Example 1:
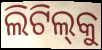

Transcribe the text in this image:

ଲିଟିଲ୍‌କୁ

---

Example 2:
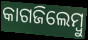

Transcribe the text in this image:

କାଗଜିଲେମ୍ବୁ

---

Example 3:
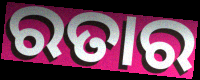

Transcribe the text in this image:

ରତାର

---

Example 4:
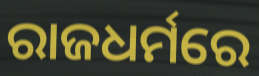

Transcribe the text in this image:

ରାଜଧର୍ମରେ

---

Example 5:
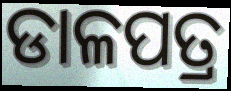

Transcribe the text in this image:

ଡାଳପତ୍ର